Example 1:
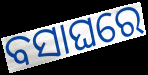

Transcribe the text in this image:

ବସାଘରେ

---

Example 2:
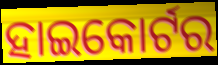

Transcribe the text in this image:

ହାଇକୋର୍ଟର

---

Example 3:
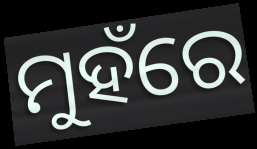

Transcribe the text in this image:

ମୁହଁରେ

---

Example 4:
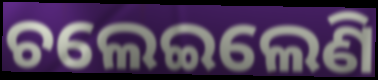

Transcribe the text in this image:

ଚଲେଇଲେଣି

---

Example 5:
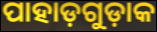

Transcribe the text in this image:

ପାହାଡ଼ଗୁଡ଼ାକ